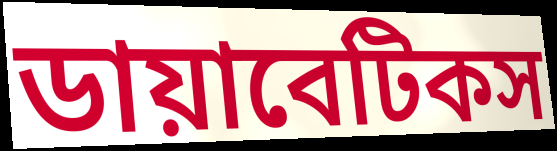
ডায়াবেটিকস